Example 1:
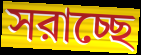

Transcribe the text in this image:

সরাচ্ছে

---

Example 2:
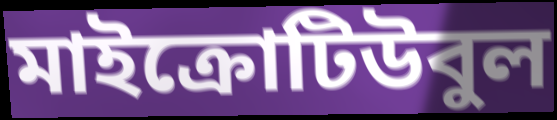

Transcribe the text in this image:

মাইক্রোটিউবুল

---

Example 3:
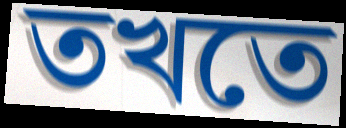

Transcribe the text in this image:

তখতে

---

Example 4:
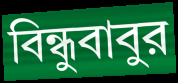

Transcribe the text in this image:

বিন্ধুবাবুর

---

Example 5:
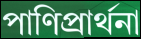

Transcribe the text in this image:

পাণিপ্রার্থনা